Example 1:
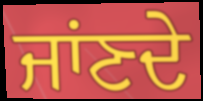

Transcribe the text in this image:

ਜਾਂਣਦੇ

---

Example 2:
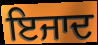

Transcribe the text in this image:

ਇਜਾਦ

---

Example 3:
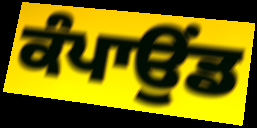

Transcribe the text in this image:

ਕੰਪਾਉਂਡ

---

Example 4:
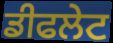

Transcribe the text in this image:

ਡੀਫਲੇਟ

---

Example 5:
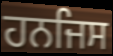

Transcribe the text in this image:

ਹਨਜਿਸ